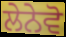
ਲੇਨੇਵੋ